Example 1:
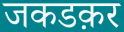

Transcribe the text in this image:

जकडक़र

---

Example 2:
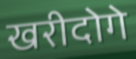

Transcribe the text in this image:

खरीदोगे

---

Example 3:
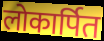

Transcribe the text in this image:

लोकार्पित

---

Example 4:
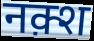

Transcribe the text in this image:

नक़्श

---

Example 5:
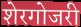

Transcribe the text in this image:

शेरगोजरी